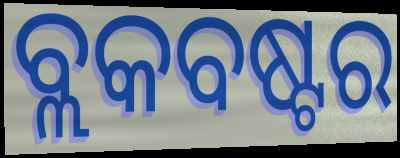
ବ୍ଲକବଷ୍ଟର